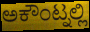
ಅಕೌಂಟ್ನಲ್ಲಿ